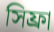
সিফ্রা